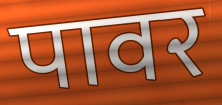
पावर